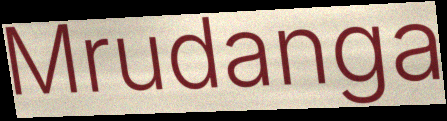
Mrudanga